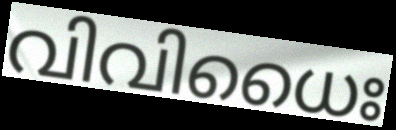
വിവിധൈഃ